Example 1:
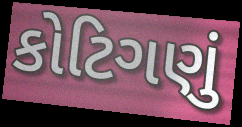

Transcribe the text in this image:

કોટિગણું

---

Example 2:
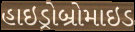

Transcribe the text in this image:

હાઇડ્રોબ્રોમાઇડ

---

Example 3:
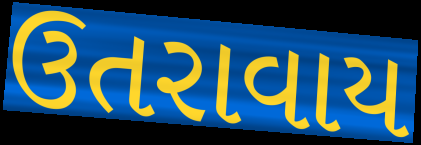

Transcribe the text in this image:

ઉતરાવાય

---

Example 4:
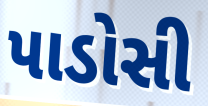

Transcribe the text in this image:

પાડોસી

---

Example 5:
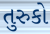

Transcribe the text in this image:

તુરુકો